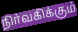
நிர்வகிக்கும்